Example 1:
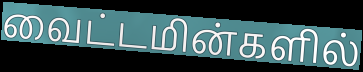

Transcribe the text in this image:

வைட்டமின்களில்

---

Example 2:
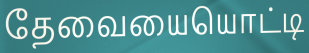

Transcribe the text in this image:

தேவையையொட்டி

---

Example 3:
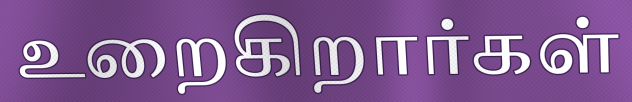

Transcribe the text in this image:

உறைகிறார்கள்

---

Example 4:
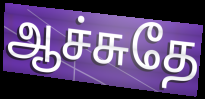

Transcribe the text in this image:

ஆச்சுதே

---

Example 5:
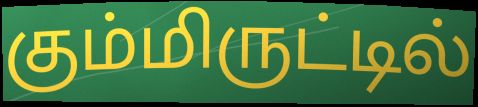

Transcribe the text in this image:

கும்மிருட்டில்